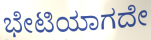
ಭೇಟಿಯಾಗದೇ